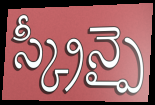
స్క్రీన్పై